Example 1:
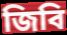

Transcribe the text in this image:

জিবি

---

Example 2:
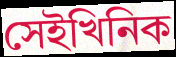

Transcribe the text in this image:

সেইখিনিক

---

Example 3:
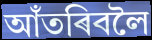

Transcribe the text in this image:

আঁতৰিবলৈ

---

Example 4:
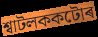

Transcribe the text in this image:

শ্বাটলককটোৰ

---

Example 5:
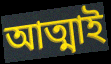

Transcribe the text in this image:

আত্মাই